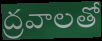
ద్రవాలతో